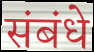
संबंधे